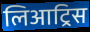
लिआट्रिस